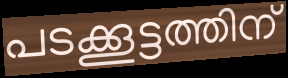
പടക്കൂട്ടത്തിന്